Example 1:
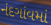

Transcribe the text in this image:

નંદગાંવમાં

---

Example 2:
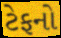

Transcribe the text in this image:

ટેફનો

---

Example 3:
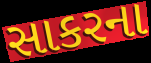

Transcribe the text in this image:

સાકરના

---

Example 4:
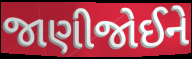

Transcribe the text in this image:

જાણીજોઈને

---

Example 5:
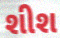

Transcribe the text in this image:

શીશ